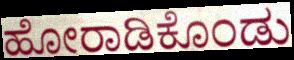
ಹೋರಾಡಿಕೊಂಡು